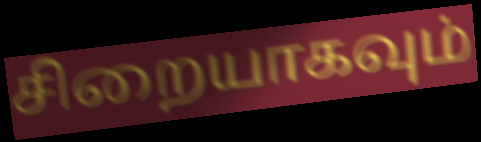
சிறையாகவும்